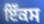
ਇੱਕਸ